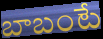
బాబంటే